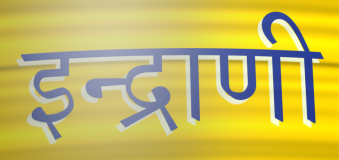
इन्द्राणी